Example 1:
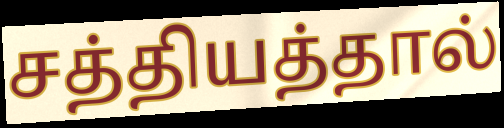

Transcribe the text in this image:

சத்தியத்தால்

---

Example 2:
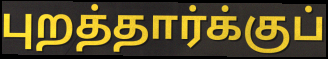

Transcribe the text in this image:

புறத்தார்க்குப்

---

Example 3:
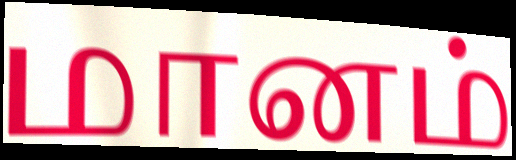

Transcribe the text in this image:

மானம்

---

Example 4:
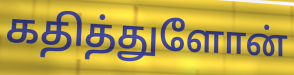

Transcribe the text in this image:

கதித்துளோன்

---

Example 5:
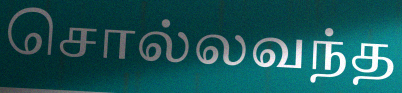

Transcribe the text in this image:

சொல்லவந்த